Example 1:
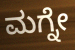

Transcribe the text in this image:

ಮಗ್ನೇ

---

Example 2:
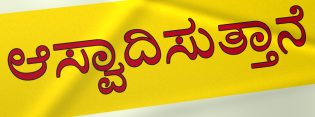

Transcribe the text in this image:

ಆಸ್ವಾದಿಸುತ್ತಾನೆ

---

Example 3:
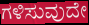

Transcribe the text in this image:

ಗಳಿಸುವುದೇ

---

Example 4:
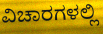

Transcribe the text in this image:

ವಿಚಾರಗಳಲ್ಲಿ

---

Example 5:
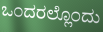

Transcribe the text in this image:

ಒಂದರಲ್ಲೊಂದು